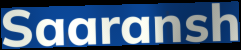
Saaransh